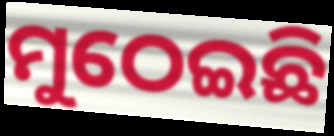
ମୁଠେଇଛି